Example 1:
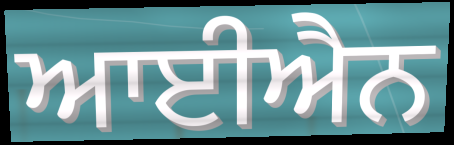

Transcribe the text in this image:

ਆਈਐਨ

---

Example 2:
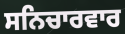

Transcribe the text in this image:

ਸਨਿਚਾਰਵਾਰ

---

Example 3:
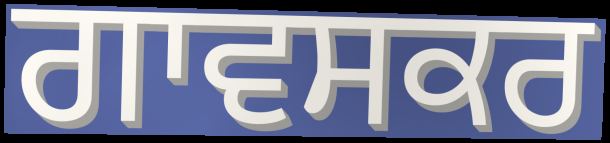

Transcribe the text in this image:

ਗਾਵਸਕਰ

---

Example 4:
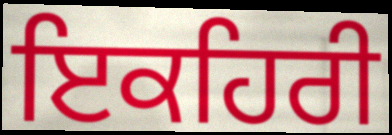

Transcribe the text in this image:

ਇਕਹਿਰੀ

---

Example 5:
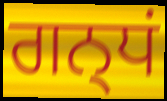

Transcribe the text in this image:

ਗਨ੍ਧਂ